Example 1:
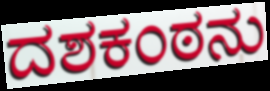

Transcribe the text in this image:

ದಶಕಂಠನು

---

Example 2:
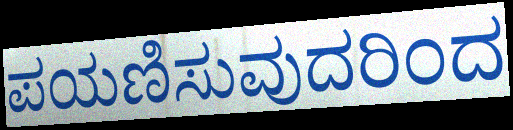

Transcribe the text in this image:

ಪಯಣಿಸುವುದರಿಂದ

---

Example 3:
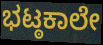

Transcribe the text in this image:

ಭಟ್ಠಕಾಲೇ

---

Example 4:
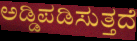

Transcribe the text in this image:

ಅಡ್ಡಿಪಡಿಸುತ್ತದೆ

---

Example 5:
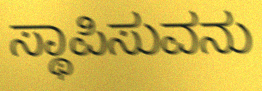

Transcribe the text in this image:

ಸ್ಥಾಪಿಸುವನು